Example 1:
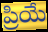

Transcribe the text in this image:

ప్రియే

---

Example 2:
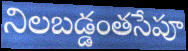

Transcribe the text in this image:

నిలబడ్డంతసేపూ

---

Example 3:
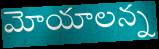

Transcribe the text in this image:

మోయాలన్న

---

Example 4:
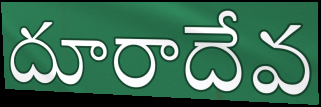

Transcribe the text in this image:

దూరాదేవ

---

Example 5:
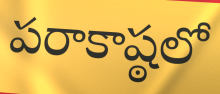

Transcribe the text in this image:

పరాకాష్ఠలో